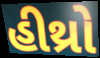
હીથ્રો